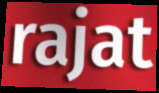
rajat